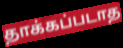
தாக்கப்படாத